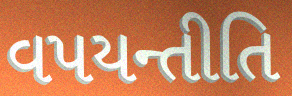
વપયન્તીતિ